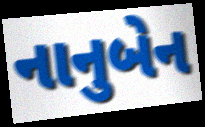
નાનુબેન